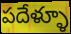
పదేళ్ళూ